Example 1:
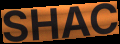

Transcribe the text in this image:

SHAC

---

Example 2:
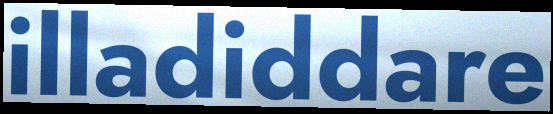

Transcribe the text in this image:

illadiddare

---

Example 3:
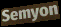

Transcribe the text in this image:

Semyon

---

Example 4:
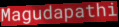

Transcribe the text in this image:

Magudapathi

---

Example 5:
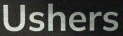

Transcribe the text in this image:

Ushers